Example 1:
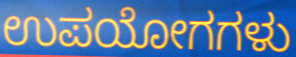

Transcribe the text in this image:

ಉಪಯೋಗಗಳು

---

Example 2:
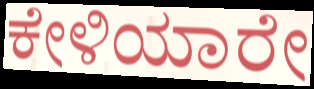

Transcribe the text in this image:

ಕೇಳಿಯಾರೇ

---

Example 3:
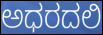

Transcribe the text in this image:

ಅಧರದಲಿ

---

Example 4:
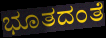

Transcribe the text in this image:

ಭೂತದಂತೆ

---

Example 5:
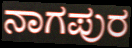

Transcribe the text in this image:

ನಾಗಪುರ